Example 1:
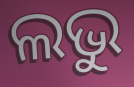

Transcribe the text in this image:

ଲଭୁ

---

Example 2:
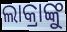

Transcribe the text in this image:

ଲାକ୍ରାଙ୍କୁ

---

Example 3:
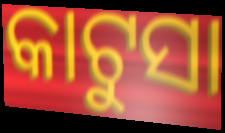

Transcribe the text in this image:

କାଟୁସା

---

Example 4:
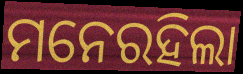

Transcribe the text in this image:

ମନେରହିଲା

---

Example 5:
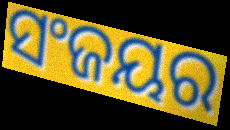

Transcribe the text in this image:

ସଂଜୟର